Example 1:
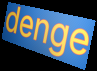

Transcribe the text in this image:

denge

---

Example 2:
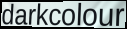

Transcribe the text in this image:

darkcolour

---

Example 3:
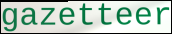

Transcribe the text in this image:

gazetteer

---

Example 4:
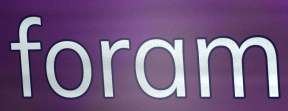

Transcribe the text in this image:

foram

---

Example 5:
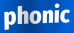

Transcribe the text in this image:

phonic